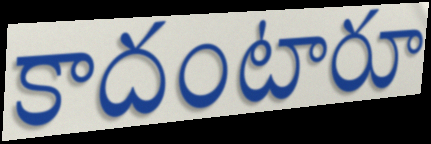
కాదంటారూ